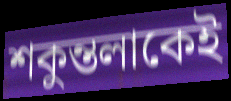
শকুন্তলাকেই